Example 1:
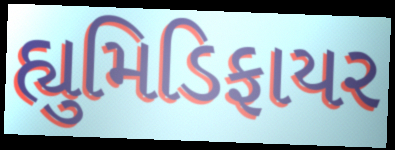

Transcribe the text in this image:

હ્યુમિડિફાયર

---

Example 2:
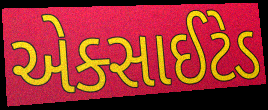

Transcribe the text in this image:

એક્સાઈટેડ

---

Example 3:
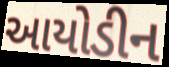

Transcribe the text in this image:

આયોડીન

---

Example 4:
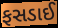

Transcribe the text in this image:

ફસડાઈ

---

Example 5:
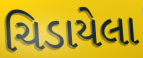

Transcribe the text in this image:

ચિડાયેલા